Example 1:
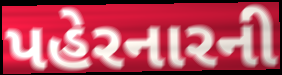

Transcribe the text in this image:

પહેરનારની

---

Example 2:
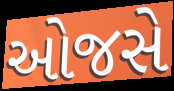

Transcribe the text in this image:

ઓજસે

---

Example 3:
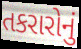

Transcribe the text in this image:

તકરારોનું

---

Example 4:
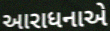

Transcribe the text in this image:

આરાધનાએ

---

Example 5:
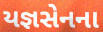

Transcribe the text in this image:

યજ્ઞસેનના